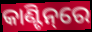
କାଣ୍ଟିନ୍‌ରେ